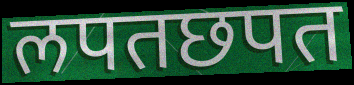
लपतछपत